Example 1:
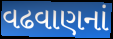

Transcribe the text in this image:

વઢવાણનાં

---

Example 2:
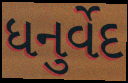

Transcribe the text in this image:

ધનુર્વેદ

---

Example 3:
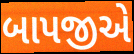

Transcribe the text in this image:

બાપજીએ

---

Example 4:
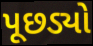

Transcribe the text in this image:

પૂછડ્યો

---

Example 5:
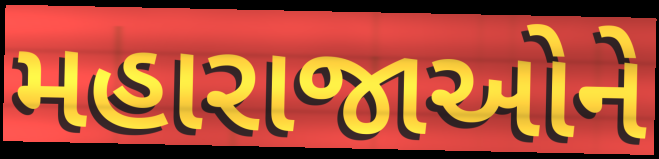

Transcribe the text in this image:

મહારાજાઓને